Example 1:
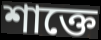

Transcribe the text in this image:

শাক্তে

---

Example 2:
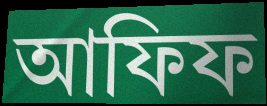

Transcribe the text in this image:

আফিফ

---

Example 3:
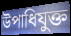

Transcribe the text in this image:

উপাধিযুক্ত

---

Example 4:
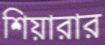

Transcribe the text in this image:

শিয়ারার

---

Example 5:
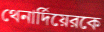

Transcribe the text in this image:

থেনার্দিয়েরকে